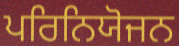
ਪਰਿਨਿਯੋਜਨ